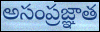
అసంప్రజ్ఞాత